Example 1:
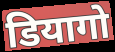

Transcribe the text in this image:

डियागो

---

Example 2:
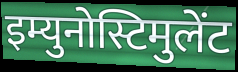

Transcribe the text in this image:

इम्युनोस्टिमुलेंट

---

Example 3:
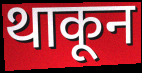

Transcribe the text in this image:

थाकून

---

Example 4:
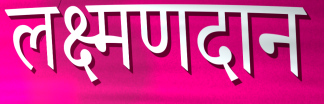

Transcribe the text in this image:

लक्ष्मणदान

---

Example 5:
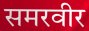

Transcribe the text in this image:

समरवीर